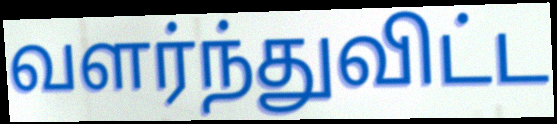
வளர்ந்துவிட்ட